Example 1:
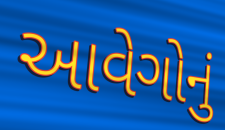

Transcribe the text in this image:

આવેગોનું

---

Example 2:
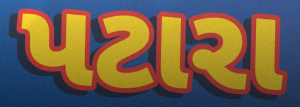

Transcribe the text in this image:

પટારા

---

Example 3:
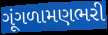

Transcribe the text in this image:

ગૂંગળામણભરી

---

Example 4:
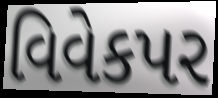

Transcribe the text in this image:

વિવેકપર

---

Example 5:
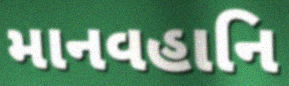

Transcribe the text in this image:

માનવહાનિ